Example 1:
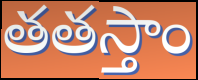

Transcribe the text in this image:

తతస్తాం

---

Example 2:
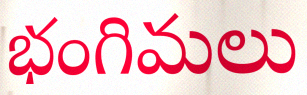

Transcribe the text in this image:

భంగిమలు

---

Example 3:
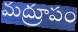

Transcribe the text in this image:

మద్రూపం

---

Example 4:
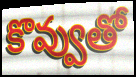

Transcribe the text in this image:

కొవ్వుతో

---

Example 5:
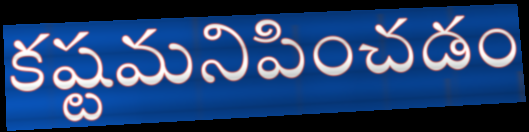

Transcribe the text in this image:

కష్టమనిపించడం